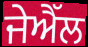
ਜੇਐੱਲ